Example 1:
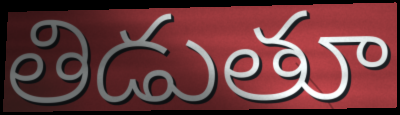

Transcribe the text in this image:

తిడుతూ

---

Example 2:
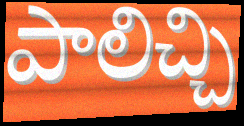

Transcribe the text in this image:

పాలిచ్చి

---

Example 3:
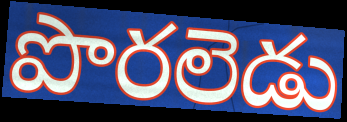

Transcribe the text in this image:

పొరలెడు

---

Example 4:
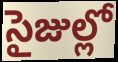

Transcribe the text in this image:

సైజుల్లో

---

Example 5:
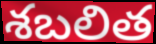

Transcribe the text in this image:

శబలిత